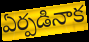
ఏర్పడినాక